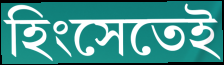
হিংসেতেই